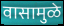
वासामुळे